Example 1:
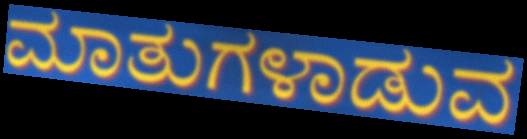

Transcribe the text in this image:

ಮಾತುಗಳಾಡುವ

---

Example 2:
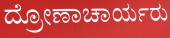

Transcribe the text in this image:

ದ್ರೋಣಾಚಾರ್ಯರು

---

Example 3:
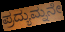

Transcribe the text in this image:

ಪ್ರದ್ಯುಮ್ನನೇ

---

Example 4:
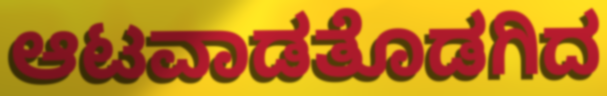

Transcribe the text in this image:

ಆಟವಾಡತೊಡಗಿದ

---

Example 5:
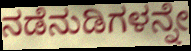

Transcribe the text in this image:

ನಡೆನುಡಿಗಳನ್ನೇ